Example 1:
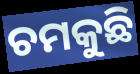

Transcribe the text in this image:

ଚମକୁଛି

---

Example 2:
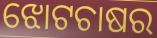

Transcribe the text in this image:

ଝୋଟଚାଷର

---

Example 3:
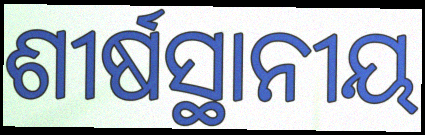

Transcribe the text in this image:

ଶୀର୍ଷସ୍ଥାନୀୟ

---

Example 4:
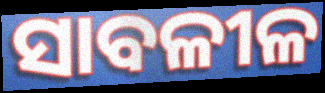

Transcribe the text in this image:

ସାବଳୀଳ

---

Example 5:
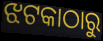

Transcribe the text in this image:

ଝଟକାଠାରୁ